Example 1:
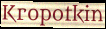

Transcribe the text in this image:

Kropotkin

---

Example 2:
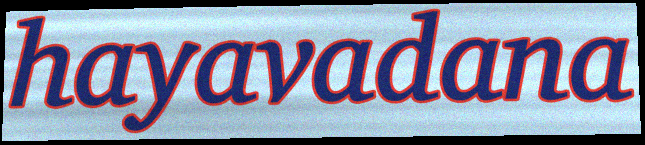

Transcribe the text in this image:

hayavadana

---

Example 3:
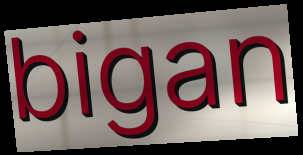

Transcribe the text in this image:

bigan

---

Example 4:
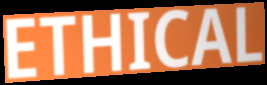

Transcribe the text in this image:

ETHICAL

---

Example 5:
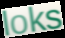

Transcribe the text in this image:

loks